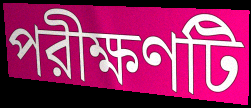
পরীক্ষণটি